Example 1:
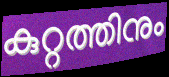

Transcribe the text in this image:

കുറ്റത്തിനും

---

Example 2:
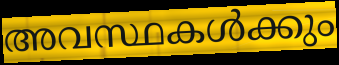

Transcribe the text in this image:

അവസ്ഥകൾക്കും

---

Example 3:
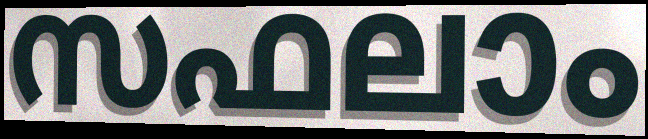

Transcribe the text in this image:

സഫലാം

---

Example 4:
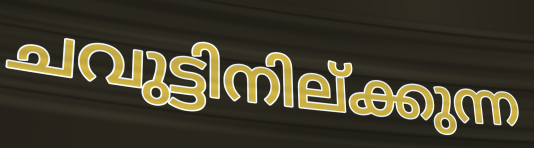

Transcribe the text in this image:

ചവുട്ടിനില്ക്കുന്ന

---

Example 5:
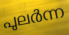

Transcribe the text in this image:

പുലർന്ന